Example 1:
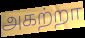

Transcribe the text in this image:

அகற்றா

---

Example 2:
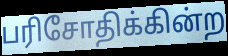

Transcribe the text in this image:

பரிசோதிக்கின்ற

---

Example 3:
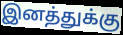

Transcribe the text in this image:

இனத்துக்கு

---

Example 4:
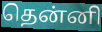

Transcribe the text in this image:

தென்னி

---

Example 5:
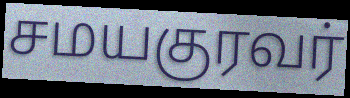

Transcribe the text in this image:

சமயகுரவர்